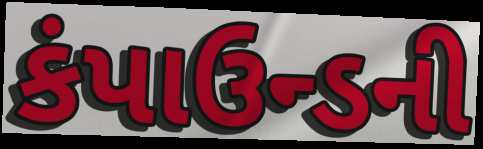
કંપાઉન્ડની